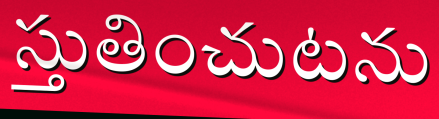
స్తుతించుటను